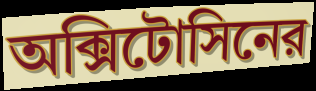
অক্সিটোসিনের